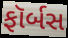
ફૉર્બસ